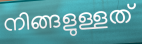
നിങ്ങളുള്ളത്